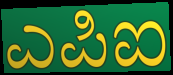
ಎಪಿಐ